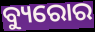
ବ୍ୟୁରୋର